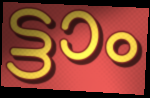
ട്ടാം